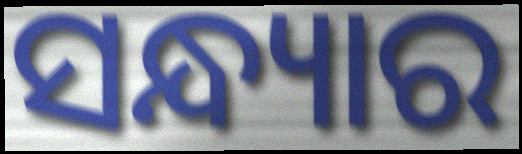
ସନ୍ଧ୍ୟାର